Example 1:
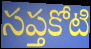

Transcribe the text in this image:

సప్తకోటి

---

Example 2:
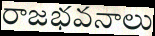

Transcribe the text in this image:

రాజభవనాలు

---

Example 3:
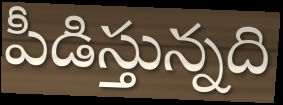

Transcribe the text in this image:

పీడిస్తున్నది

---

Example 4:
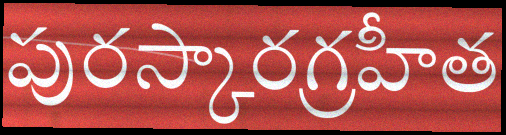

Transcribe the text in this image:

పురస్కారగ్రహీత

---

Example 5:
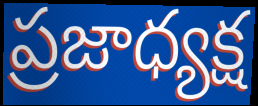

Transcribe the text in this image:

ప్రజాధ్యక్ష